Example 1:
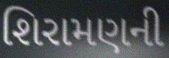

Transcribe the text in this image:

શિરામણની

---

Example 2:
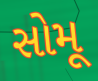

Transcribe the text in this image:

સોમૂ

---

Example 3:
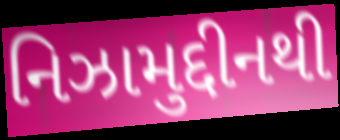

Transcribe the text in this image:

નિઝામુદ્દીનથી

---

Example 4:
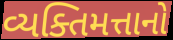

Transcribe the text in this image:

વ્યક્તિમત્તાનો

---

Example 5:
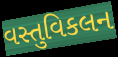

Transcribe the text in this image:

વસ્તુવિકલન